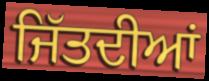
ਜਿੱਤਦੀਆਂ